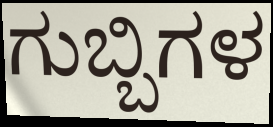
ಗುಬ್ಬಿಗಳ